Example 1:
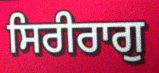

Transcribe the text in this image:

ਸਿਰੀਰਾਗੁ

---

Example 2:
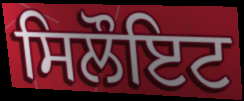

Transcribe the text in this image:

ਸਿਲੌਇਟ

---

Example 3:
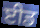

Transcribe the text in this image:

ਈਡ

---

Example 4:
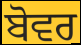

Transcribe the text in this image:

ਬੋਵਰ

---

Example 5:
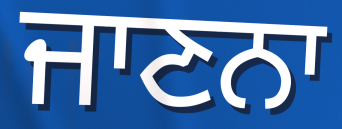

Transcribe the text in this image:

ਜਾਣਨਾ